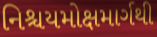
નિશ્ચયમોક્ષમાર્ગથી